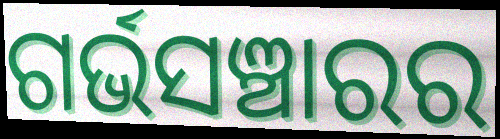
ଗର୍ଭସଞ୍ଚାରର